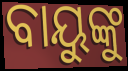
ବାୟୁଙ୍କୁ